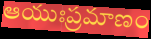
ఆయుఃప్రమాణం